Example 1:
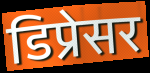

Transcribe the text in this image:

डिप्रेसर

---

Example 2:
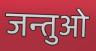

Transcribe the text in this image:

जन्तुओ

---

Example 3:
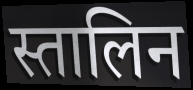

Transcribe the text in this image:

स्तालिन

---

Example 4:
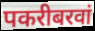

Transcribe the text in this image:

पकरीबरवां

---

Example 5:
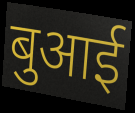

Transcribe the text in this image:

बुआई